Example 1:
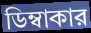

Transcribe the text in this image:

ডিম্বাকার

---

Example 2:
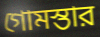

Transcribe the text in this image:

গোমস্তার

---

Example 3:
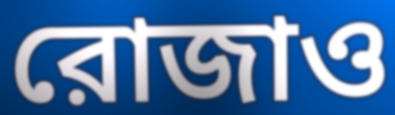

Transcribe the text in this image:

রোজাও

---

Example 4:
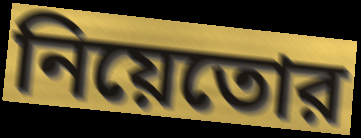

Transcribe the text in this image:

নিয়েতোর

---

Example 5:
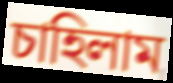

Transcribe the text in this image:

চাহিলাম